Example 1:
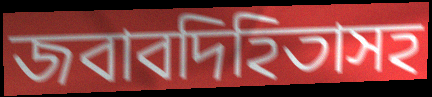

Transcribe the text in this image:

জবাবদিহিতাসহ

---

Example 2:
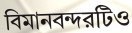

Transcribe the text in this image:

বিমানবন্দরটিও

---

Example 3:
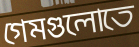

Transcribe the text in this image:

গেমগুলোতে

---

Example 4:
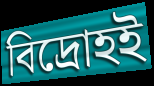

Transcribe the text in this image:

বিদ্রোহই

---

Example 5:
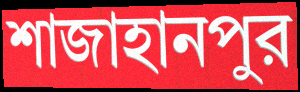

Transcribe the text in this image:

শাজাহানপুর